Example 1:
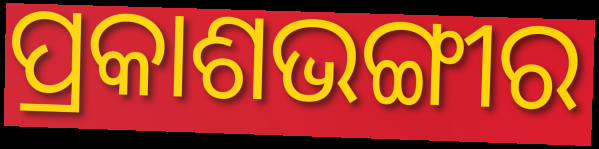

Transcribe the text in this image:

ପ୍ରକାଶଭଙ୍ଗୀର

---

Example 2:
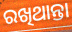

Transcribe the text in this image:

ରଖିଥାନ୍ତା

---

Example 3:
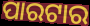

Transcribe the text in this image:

ପାରଟାର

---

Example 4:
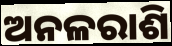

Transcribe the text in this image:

ଅନଳରାଶି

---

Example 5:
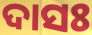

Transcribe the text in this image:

ଦାସଃ